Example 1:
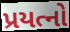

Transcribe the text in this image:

પ્રયત્નો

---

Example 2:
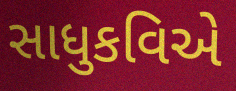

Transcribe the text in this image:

સાધુકવિએ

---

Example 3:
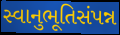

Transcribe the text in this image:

સ્વાનુભૂતિસંપન્ન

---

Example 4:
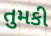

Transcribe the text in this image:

તુમકી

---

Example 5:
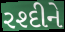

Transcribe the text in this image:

રશ્દીને